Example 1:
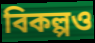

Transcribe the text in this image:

বিকল্পও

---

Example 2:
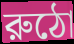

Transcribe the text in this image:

রুঠো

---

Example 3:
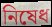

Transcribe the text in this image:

নিষেধ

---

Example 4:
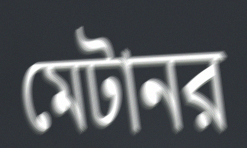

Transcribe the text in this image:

মেটানর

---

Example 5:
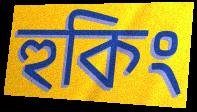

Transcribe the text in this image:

হুকিং